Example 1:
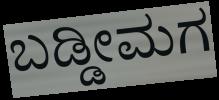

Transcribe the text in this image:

ಬಡ್ಡೀಮಗ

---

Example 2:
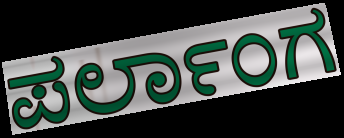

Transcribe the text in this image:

ಪರ್ಲಾಂಗ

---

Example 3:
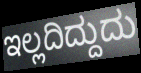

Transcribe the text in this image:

ಇಲ್ಲದಿದ್ದುದು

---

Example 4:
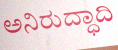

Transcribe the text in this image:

ಅನಿರುದ್ಧಾದಿ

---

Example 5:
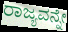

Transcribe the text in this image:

ರಾಜ್ಯವನ್ನೇ